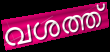
വശത്ത്